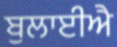
ਬੁਲਾਈਐ